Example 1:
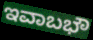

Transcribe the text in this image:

ಇವಾಬಭೌ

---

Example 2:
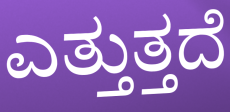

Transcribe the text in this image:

ಎತ್ತುತ್ತದೆ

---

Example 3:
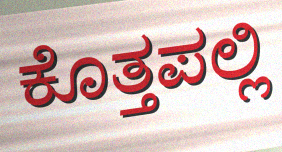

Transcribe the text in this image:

ಕೊತ್ತಪಲ್ಲಿ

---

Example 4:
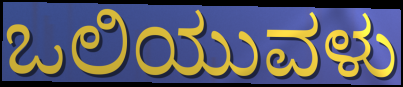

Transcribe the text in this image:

ಒಲಿಯುವಳು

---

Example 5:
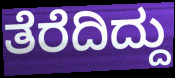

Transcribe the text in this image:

ತೆರೆದಿದ್ದು